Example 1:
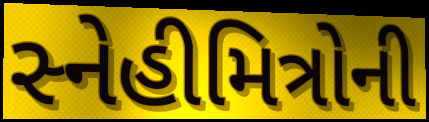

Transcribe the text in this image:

સ્નેહીમિત્રોની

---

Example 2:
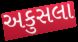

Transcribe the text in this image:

અકુસલા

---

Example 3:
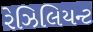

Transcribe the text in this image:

રેઝિલિયન્ટ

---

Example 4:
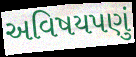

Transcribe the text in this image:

અવિષયપણું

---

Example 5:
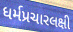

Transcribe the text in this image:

ધર્મપ્રચારલક્ષી